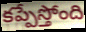
కప్పేస్తోంది